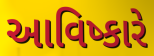
આવિષ્કારે